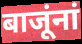
बाजूंनां